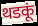
थडकूं